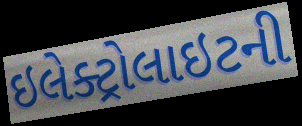
ઇલેક્ટ્રોલાઇટની